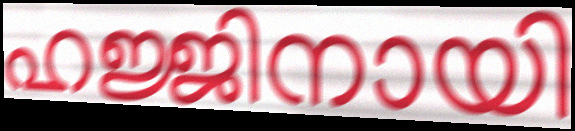
ഹജ്ജിനായി